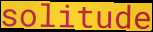
solitude